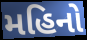
મહિનો